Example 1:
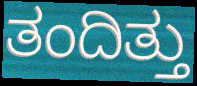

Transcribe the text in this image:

ತಂದಿತ್ತು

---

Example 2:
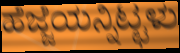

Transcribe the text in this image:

ಹೆಜ್ಜೆಯನ್ನಿಟ್ಟಳು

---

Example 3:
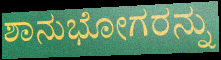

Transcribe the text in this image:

ಶಾನುಭೋಗರನ್ನು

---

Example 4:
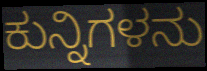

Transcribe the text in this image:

ಕುನ್ನಿಗಳನು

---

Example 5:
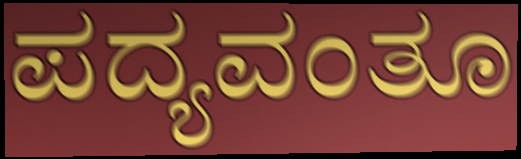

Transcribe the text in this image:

ಪದ್ಯವಂತೂ